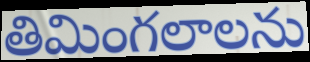
తిమింగలాలను